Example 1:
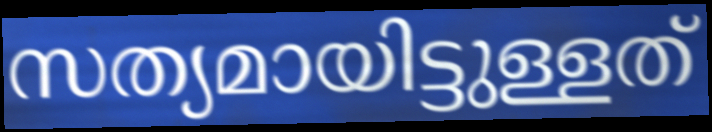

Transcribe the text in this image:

സത്യമായിട്ടുള്ളത്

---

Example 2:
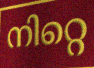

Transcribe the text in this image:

നിറ്റെ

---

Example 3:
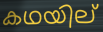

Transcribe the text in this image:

കഥയില്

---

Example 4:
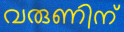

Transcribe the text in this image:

വരുണിന്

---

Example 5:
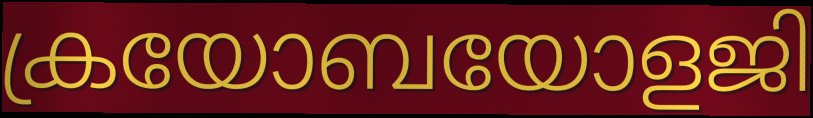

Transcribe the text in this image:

ക്രയോബയോളജി